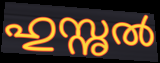
ഹുസ്നുൽ